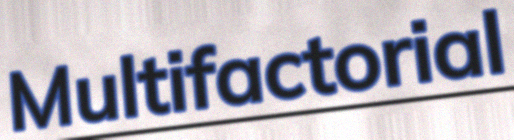
Multifactorial